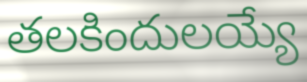
తలకిందులయ్యే